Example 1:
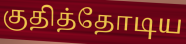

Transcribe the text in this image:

குதித்தோடிய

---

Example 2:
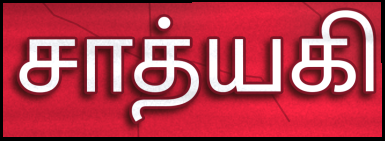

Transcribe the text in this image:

சாத்யகி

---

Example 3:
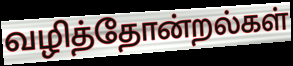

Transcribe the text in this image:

வழித்தோன்றல்கள்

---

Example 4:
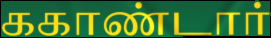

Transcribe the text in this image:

ககாண்டார்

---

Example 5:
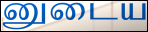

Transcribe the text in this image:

னுடைய